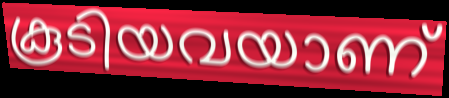
കൂടിയവയാണ്